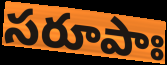
సరూపాః